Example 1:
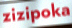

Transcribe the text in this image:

zizipoka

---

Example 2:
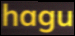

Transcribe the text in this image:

hagu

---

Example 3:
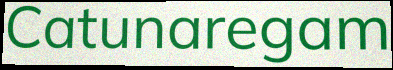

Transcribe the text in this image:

Catunaregam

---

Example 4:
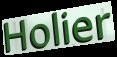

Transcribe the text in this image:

Holier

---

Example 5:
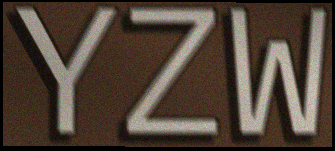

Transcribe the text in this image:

YZW